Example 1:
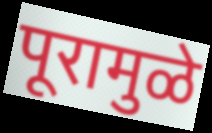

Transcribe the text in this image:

पूरामुळे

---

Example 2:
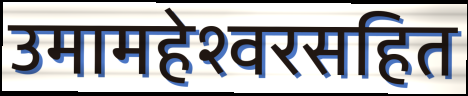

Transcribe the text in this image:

उमामहेश्वरसहित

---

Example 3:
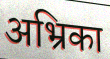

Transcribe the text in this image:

अभ्रिका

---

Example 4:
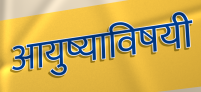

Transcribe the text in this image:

आयुष्याविषयी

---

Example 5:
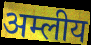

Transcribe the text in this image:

अम्‍लीय